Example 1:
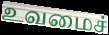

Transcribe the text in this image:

உவமைச்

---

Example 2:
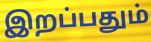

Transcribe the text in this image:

இறப்பதும்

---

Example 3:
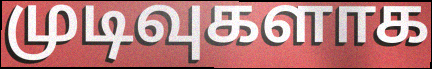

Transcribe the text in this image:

முடிவுகளாக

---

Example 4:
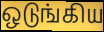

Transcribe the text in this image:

ஒடுங்கிய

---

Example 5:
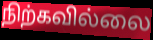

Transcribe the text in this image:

நிற்கவில்லை